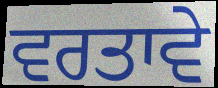
ਵਰਤਾਵੇ